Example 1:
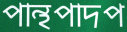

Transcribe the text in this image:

পান্থপাদপ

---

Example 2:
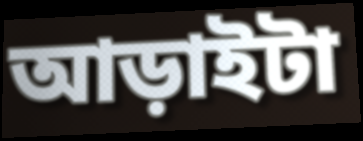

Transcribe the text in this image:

আড়াইটা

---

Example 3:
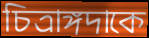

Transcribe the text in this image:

চিত্রাঙ্গদাকে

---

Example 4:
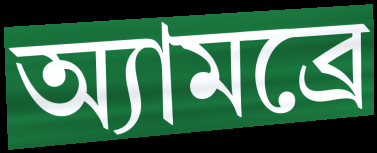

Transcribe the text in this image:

অ্যামব্রে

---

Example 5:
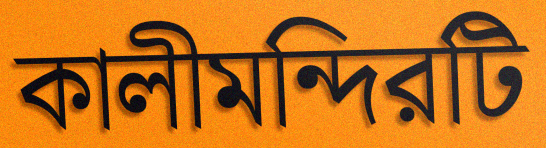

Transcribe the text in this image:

কালীমন্দিরটি